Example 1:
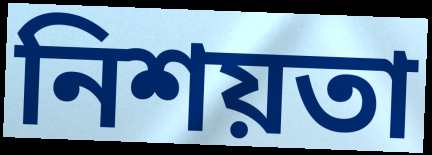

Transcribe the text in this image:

নিশয়তা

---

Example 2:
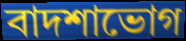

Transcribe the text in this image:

বাদশাভোগ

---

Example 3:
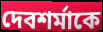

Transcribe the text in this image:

দেবশর্মাকে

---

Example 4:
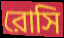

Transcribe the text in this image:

রোসি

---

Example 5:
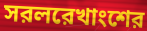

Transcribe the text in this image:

সরলরেখাংশের